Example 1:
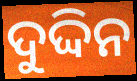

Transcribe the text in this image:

ଦୁଦ୍ଦିନ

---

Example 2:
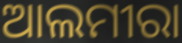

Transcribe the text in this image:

ଆଲମୀରା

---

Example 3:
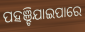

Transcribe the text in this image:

ପହଞ୍ଚିଯାଇପାରେ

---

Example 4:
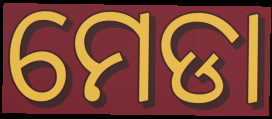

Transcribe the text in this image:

ମେଡା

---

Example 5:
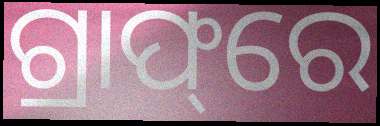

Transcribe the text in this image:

ଗ୍ରାଫ୍‌ରେ